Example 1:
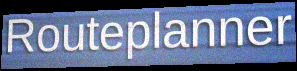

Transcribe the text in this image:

Routeplanner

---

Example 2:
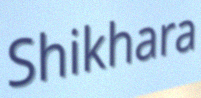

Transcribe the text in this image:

Shikhara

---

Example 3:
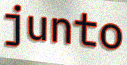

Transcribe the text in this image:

junto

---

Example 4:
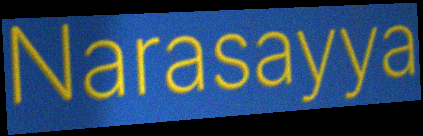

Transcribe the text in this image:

Narasayya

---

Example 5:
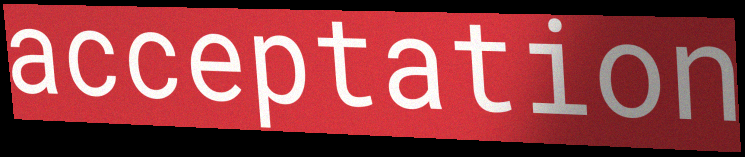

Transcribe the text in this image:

acceptation